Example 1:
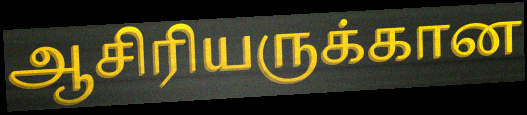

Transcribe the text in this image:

ஆசிரியருக்கான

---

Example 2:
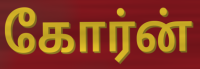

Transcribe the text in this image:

கோர்ன்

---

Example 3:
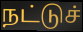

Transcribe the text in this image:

நட்டுச்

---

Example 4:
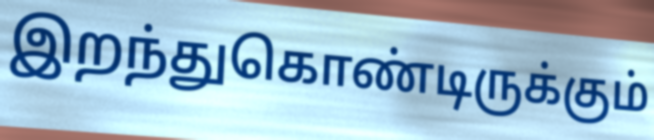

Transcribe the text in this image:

இறந்துகொண்டிருக்கும்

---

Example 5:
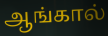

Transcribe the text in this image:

ஆங்கால்